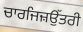
ਚਾਰਜਿਜ਼ਉੱਤਰੀ